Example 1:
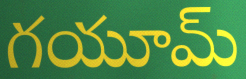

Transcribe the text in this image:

గయూమ్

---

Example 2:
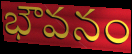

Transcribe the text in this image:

భౌవనం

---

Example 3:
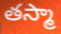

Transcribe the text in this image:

తస్మా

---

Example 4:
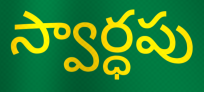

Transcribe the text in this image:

స్వార్ధపు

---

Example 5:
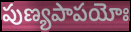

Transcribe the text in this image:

పుణ్యపాపయోః